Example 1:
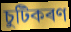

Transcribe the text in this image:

চুটিকৰণ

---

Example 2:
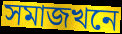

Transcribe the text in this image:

সমাজখনে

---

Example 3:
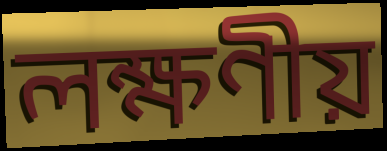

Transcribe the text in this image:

লক্ষণীয়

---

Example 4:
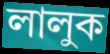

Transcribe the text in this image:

লালুক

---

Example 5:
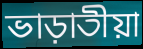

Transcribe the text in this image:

ভাড়াতীয়া